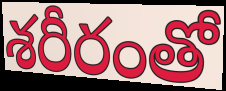
శరీరంతో